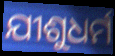
ଯୀଶୁଧର୍ମ